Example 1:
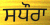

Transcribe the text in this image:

ਸਧੌਰਾ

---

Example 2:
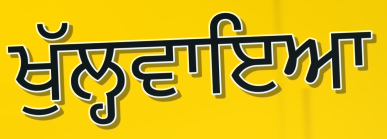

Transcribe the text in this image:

ਖੁੱਲ੍ਹਵਾਇਆ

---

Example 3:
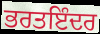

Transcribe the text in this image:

ਭਰਤਇੰਦਰ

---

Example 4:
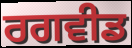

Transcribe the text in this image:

ਰਗਵੀਡ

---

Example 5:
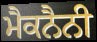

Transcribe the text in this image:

ਮੈਕਨੈਨੀ